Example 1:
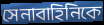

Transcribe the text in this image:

সেনাবাহিনিকে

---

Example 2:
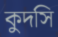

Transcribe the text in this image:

কুদসি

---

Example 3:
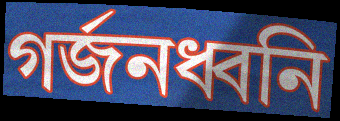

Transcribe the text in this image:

গর্জনধ্বনি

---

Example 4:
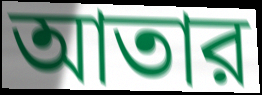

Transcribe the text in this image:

আতার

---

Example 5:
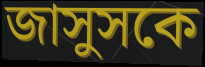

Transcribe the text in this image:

জাসুসকে